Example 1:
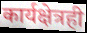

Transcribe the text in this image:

कार्यक्षेत्रही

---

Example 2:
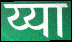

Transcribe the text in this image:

य्या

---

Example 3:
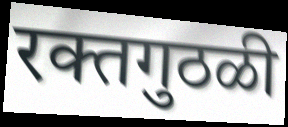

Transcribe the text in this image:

रक्तगुठळी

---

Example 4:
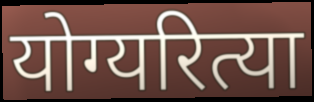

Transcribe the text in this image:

योग्यरित्या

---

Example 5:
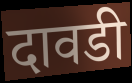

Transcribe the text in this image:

दावडी